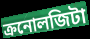
ক্রনোলজিটা